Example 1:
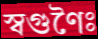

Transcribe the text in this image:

স্বগুণৈঃ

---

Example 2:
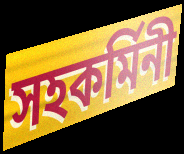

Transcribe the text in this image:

সহকর্মিনী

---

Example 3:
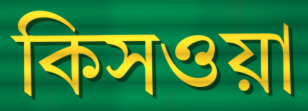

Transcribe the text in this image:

কিসওয়া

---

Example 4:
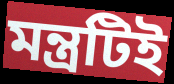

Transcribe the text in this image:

মন্ত্রটিই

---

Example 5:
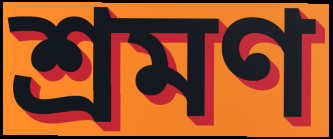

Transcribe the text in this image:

শ্রমণ